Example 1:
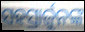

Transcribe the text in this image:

ସହସ୍ରାର୍ଜୁନଙ୍କ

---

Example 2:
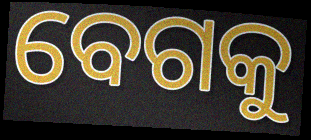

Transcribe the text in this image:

ବେଗକୁ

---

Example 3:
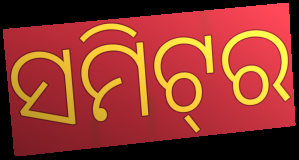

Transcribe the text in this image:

ସମିଟ୍‌ର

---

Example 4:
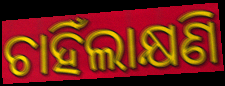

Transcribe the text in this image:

ଚାହିଁଲାକ୍ଷଣି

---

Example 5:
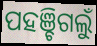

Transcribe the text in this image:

ପହଞ୍ଚିଗଲୁଁ